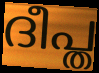
ദീപ്ത